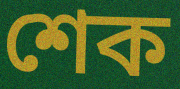
শেক